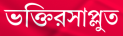
ভক্তিরসাপ্লুত